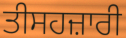
ਤੀਸਹਜ਼ਾਰੀ